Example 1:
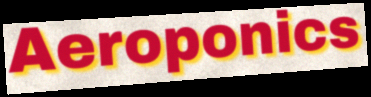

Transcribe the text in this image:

Aeroponics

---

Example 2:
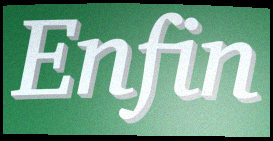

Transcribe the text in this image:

Enfin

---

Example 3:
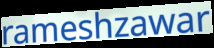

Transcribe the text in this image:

rameshzawar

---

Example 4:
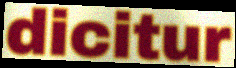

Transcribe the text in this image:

dicitur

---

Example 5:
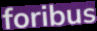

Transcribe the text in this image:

foribus